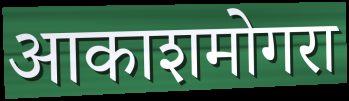
आकाशमोगरा